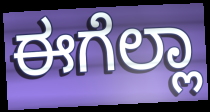
ಈಗೆಲ್ಲಾ